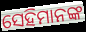
ସେହିମାନଙ୍କ